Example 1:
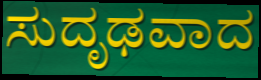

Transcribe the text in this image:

ಸುದೃಢವಾದ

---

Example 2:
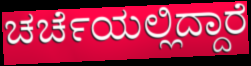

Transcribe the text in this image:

ಚರ್ಚೆಯಲ್ಲಿದ್ದಾರೆ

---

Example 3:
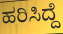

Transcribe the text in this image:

ಹರಿಸಿದ್ದೆ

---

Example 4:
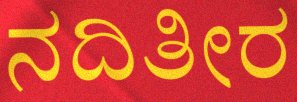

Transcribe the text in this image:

ನದಿತೀರ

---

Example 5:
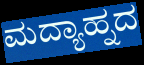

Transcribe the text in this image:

ಮದ್ಯಾಹ್ನದ